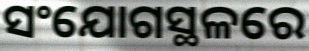
ସଂଯୋଗସ୍ଥଳରେ